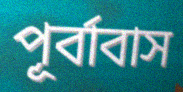
পূর্বাবাস